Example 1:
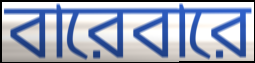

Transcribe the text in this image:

বারেবারে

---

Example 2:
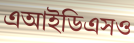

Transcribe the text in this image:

এআইডিএসও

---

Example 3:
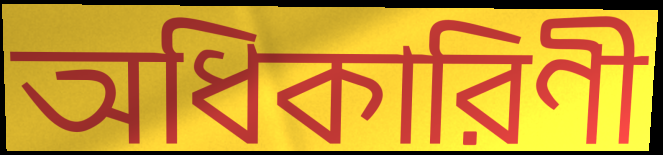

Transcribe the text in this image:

অধিকারিণী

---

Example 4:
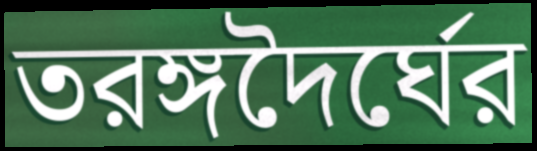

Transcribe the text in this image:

তরঙ্গদৈর্ঘের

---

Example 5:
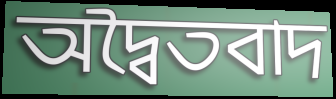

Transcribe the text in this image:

অদ্বৈতবাদ